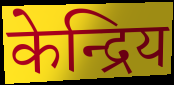
केन्द्रिय